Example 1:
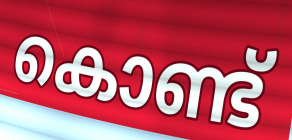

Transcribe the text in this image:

കൊണ്ട്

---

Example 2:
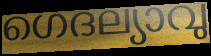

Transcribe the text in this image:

ഗെദല്യാവു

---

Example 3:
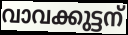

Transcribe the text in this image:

വാവക്കുട്ടന്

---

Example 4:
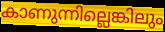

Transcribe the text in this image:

കാണുന്നില്ലെങ്കിലും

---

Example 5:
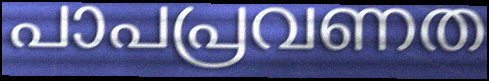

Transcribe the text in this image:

പാപപ്രവണത